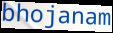
bhojanam